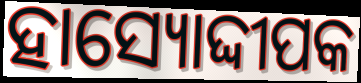
ହାସ୍ୟୋଦ୍ଦୀପକ